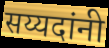
सय्यदांनी